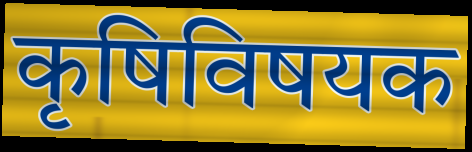
कृषिविषयक